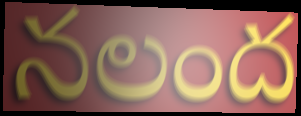
నలంద